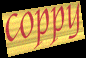
coppy